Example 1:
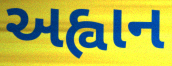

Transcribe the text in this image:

અહ્વાન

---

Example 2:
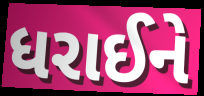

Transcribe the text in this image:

ધરાઈને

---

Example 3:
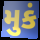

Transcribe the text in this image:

મુકં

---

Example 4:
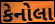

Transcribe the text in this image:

કેનોલા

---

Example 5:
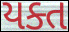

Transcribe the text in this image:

યક્ત